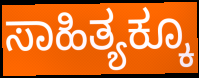
ಸಾಹಿತ್ಯಕ್ಕೂ